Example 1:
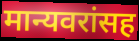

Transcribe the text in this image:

मान्यवरांसह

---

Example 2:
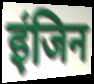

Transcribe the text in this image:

इंजिन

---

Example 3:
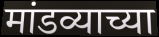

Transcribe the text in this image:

मांडव्याच्या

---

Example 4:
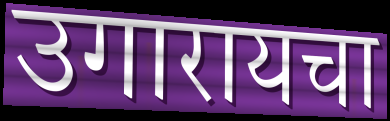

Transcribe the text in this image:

उगारायचा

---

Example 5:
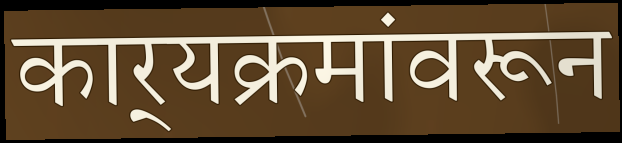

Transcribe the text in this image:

कार्यक्रमांवरून